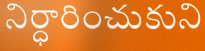
నిర్ధారించుకుని